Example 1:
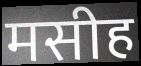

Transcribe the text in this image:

मसीह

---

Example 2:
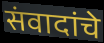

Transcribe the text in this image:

संवादांचे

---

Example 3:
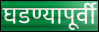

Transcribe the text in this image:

घडण्यापूर्वी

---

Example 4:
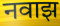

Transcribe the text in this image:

नवाझ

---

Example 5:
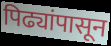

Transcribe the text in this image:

पिढ्यांपासून